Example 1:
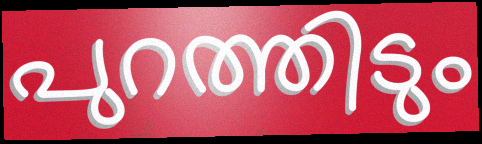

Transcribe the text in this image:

പുറത്തിടും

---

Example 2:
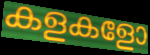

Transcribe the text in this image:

കളകളോ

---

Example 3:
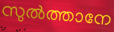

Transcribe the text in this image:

സുൽത്താനേ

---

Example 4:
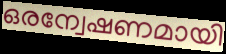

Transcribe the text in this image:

ഒരന്വേഷണമായി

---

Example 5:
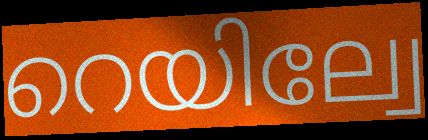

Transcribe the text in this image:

റെയില്വേ